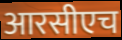
आरसीएच